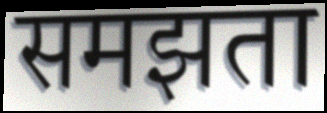
समझता